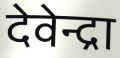
देवेन्द्रा